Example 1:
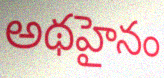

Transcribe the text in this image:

అథహైనం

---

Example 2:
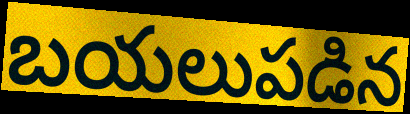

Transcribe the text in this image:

బయలుపడిన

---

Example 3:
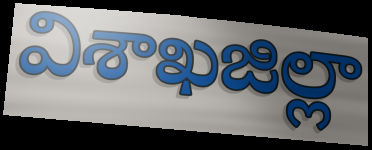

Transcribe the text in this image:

విశాఖజిల్లా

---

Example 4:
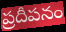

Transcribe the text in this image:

ప్రదీపనం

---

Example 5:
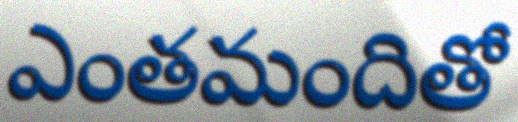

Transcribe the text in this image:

ఎంతమందితో